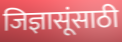
जिज्ञासूंसाठी